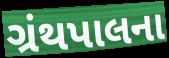
ગ્રંથપાલના